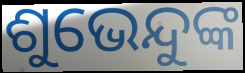
ଶୁଭେନ୍ଦୁଙ୍କ